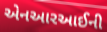
એનઆરઆઈની